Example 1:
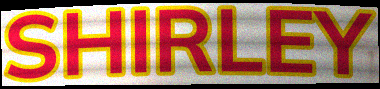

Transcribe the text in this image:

SHIRLEY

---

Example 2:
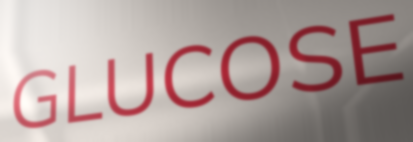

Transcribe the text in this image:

GLUCOSE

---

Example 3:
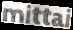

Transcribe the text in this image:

mittai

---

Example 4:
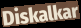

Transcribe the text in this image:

Diskalkar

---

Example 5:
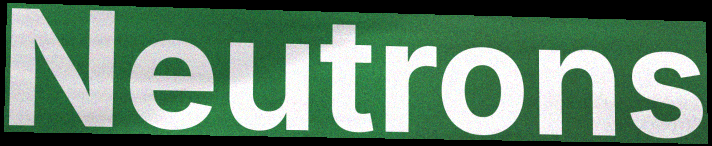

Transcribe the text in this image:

Neutrons